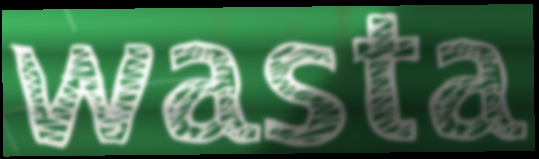
wasta